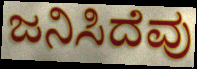
ಜನಿಸಿದೆವು